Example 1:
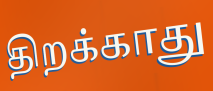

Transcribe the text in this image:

திறக்காது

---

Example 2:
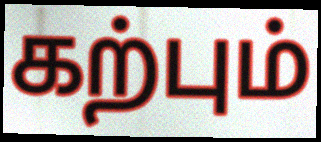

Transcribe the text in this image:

கற்பும்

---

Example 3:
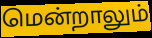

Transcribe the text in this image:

மென்றாலும்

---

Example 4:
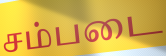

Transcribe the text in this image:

சம்படை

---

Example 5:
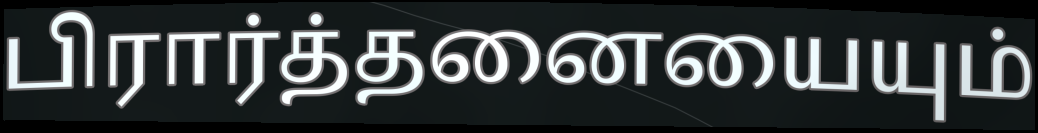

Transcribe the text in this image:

பிரார்த்தனையையும்